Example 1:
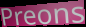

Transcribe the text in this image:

Preons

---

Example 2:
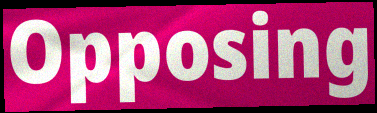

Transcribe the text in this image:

Opposing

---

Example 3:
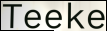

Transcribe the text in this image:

Teeke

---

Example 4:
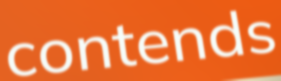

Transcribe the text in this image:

contends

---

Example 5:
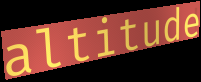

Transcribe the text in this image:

altitude